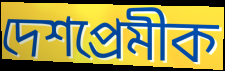
দেশপ্রেমীক